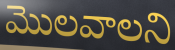
మొలవాలని